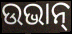
ଉଭାନ୍